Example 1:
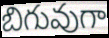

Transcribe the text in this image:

బిగువుగా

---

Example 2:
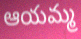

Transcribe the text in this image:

ఆయమ్మ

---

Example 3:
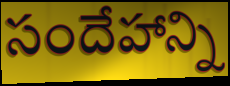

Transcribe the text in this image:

సందేహాన్ని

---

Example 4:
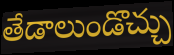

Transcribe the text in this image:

తేడాలుండొచ్చు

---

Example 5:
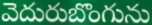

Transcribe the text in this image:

వెదురుబొంగును